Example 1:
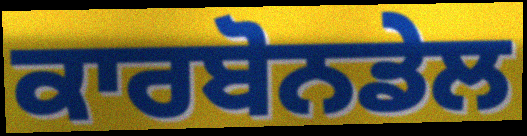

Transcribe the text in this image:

ਕਾਰਬੋਨਡੇਲ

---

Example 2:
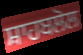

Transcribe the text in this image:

ਸ਼ਾਹਬਲੋਲ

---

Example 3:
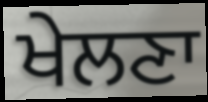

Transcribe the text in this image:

ਖੇਲਣਾ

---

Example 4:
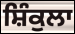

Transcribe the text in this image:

ਸ਼ਿੰਕੁਲਾ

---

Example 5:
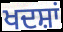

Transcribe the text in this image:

ਖਦਸ਼ਾਂ